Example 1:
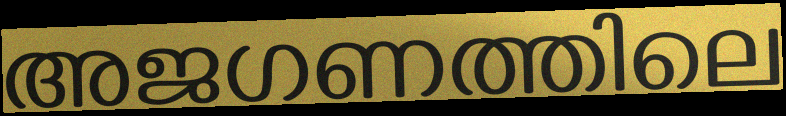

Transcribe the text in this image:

അജഗണത്തിലെ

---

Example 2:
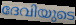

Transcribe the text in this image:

ദേവിയുടെ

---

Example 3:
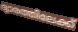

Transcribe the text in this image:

ദ്വാരത്തിലേക്ക്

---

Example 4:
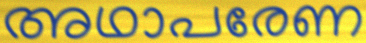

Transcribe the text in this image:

അഥാപരേണ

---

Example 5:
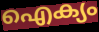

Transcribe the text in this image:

ഐക്യം